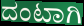
ದಂಟಾಗಿ